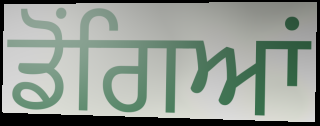
ਡੋਂਗਿਆਂ